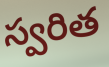
స్వరిత